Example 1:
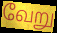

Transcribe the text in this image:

வேறு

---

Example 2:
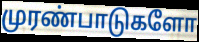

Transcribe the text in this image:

முரண்பாடுகளோ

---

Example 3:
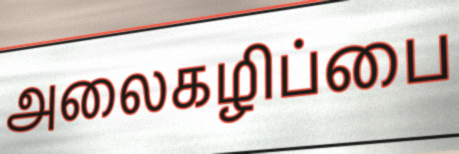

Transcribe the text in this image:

அலைகழிப்பை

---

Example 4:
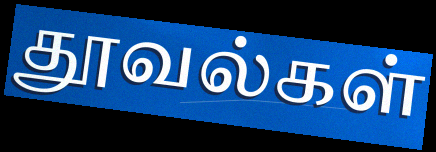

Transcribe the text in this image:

தூவல்கள்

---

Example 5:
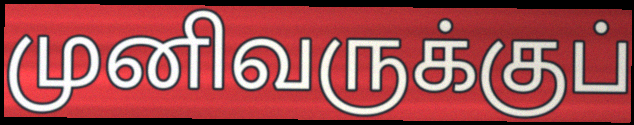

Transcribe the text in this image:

முனிவருக்குப்